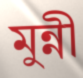
মুন্নী